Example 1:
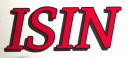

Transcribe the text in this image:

ISIN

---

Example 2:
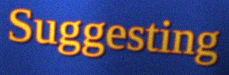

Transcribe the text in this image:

Suggesting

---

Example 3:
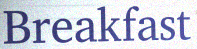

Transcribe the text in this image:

Breakfast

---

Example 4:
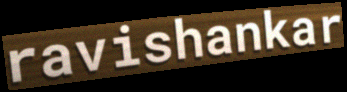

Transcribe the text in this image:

ravishankar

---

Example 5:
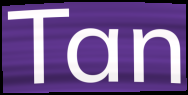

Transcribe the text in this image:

Tan